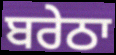
ਬਰੇਠਾ